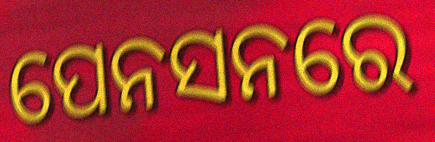
ପେନସନରେ